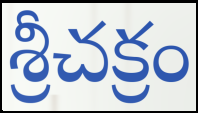
శ్రీచక్రం